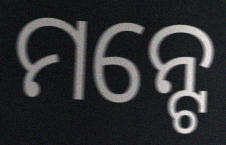
ମନ୍ଟେ